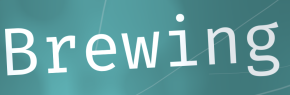
Brewing